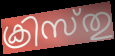
ക്രിസ്‌തു